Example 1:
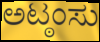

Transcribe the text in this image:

ಅಟ್ಠಂಸು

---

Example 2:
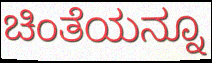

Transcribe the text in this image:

ಚಿಂತೆಯನ್ನೂ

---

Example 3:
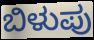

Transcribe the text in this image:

ಬಿಳುಪು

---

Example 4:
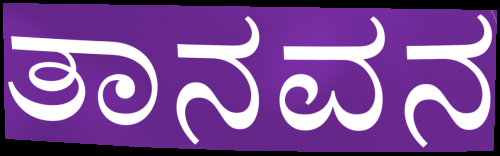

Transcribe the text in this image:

ತಾನವನ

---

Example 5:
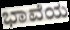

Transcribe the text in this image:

ಭಾವೆಯ